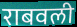
राबवली